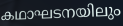
കഥാഘടനയിലും